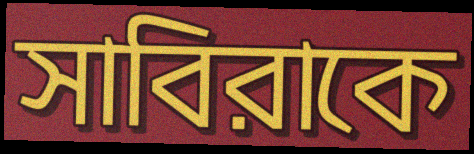
সাবিরাকে